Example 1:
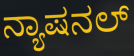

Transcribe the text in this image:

ನ್ಯಾಷನಲ್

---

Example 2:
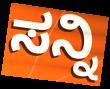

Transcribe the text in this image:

ಸನ್ನಿ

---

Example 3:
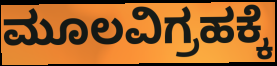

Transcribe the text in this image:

ಮೂಲವಿಗ್ರಹಕ್ಕೆ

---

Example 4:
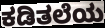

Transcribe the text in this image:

ಕಡಿತಲೆಯ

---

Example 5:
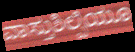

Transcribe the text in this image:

ವಾಸ್ತುಶಿಲ್ಪಿಯೂ